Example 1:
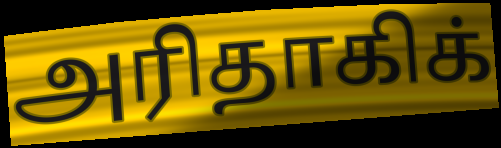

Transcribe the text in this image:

அரிதாகிக்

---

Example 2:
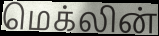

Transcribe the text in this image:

மெக்லின்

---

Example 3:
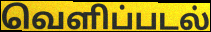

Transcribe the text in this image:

வெளிப்படல்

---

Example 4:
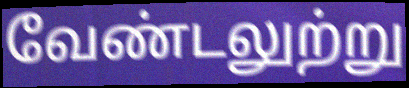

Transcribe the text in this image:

வேண்டலுற்று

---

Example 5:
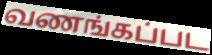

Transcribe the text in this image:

வணங்கப்பட